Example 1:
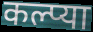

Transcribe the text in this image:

कल्प्या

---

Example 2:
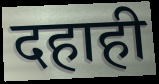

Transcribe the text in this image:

दहाही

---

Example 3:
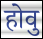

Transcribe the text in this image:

होवु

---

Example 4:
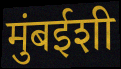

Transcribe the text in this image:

मुंबईशी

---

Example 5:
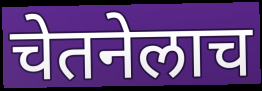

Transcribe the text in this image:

चेतनेलाच